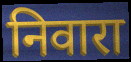
निवारा